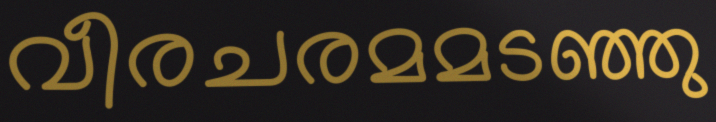
വീരചരമമടഞ്ഞു